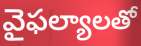
వైఫల్యాలతో